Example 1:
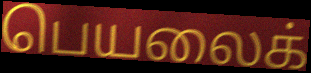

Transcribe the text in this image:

பெயலைக்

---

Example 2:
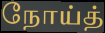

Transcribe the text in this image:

நோய்த்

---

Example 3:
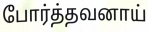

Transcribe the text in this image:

போர்த்தவனாய்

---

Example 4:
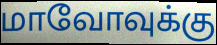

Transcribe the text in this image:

மாவோவுக்கு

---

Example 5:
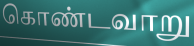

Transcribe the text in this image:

கொண்டவாறு